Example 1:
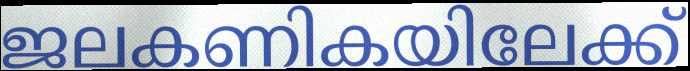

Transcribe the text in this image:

ജലകണികയിലേക്ക്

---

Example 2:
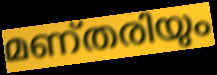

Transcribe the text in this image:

മണ്തരിയും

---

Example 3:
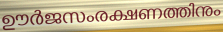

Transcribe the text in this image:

ഊർജസംരക്ഷണത്തിനും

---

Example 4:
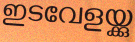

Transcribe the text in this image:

ഇടവേളയ്ക്കു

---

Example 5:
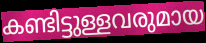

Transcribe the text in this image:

കണ്ടിട്ടുള്ളവരുമായ